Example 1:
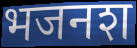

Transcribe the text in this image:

भजनश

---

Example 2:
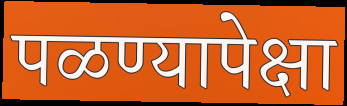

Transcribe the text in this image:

पळण्यापेक्षा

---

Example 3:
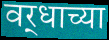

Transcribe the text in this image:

वर्धाच्या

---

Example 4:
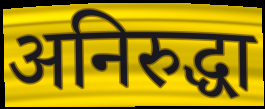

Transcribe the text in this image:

अनिरुद्धा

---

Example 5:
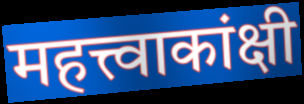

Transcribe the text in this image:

महत्त्वाकांक्षी